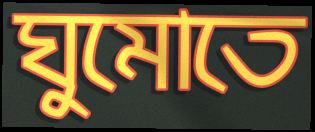
ঘুমোতে